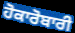
ਹੋਕਾਰੋਬਾਰੀ